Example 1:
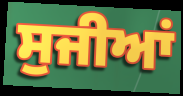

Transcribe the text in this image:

ਸੁਜੀਆਂ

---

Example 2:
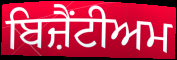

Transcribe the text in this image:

ਬਿਜ਼ੈਂਟੀਅਮ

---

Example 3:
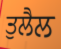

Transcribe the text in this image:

ਤੁਲੈਲ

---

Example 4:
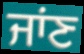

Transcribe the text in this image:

ਜਾਂਣ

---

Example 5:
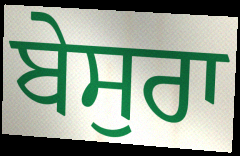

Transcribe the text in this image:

ਬੇਸੁਰਾ